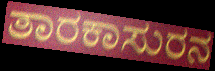
ತಾರಕಾಸುರನ